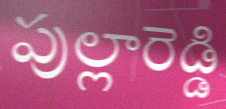
పుల్లారెడ్డి